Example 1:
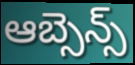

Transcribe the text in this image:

ఆబ్సెన్స్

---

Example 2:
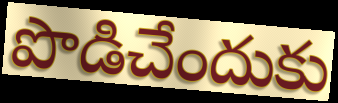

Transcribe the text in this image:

పొడిచేందుకు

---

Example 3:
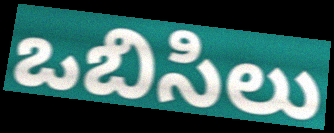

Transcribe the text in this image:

ఒబిసిలు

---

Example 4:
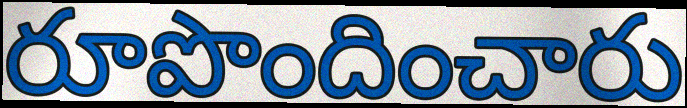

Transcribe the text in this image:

రూపొందించారు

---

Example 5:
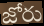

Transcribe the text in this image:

జోరు